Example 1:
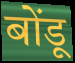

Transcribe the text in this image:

बोंडू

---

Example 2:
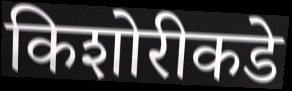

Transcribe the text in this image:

किशोरीकडे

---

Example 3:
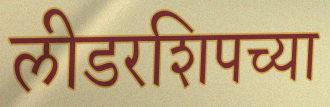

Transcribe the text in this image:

लीडरशिपच्या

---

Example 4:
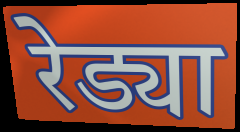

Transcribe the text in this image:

रेड्या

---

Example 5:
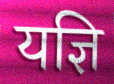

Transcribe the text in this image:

यज्ञि